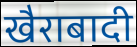
खैराबादी